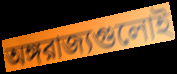
অঙ্গরাজ্যগুলোই